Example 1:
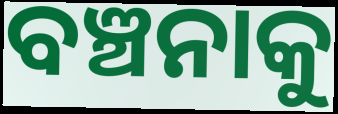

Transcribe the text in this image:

ବଞ୍ଚନାକୁ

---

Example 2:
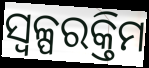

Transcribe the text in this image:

ସ୍ୱଳ୍ପରକ୍ତିମ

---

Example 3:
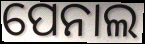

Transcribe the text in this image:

ପେନାଲ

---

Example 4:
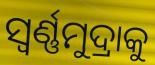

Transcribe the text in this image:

ସ୍ଵର୍ଣ୍ଣମୁଦ୍ରାକୁ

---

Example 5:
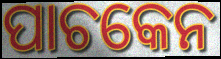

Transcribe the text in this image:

ପାଚକେନ